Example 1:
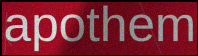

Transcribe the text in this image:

apothem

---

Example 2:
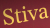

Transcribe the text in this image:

Stiva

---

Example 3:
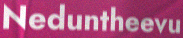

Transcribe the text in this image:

Neduntheevu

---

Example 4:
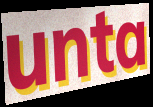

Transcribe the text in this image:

unta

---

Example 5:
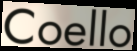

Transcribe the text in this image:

Coello